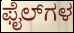
ಫೈಲ್‌ಗಳ